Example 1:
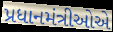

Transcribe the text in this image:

પ્રધાનમંત્રીઓએ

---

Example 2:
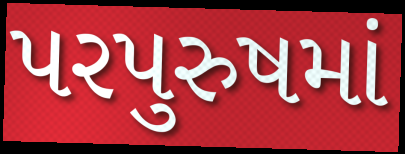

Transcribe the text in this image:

પરપુરુષમાં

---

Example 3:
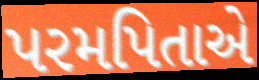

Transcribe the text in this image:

પરમપિતાએ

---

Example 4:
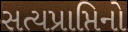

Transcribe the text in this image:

સત્યપ્રાપ્તિનો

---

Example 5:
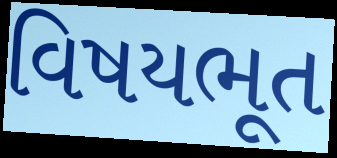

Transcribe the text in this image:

વિષયભૂત